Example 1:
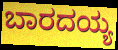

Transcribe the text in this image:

ಬಾರದಯ್ಯ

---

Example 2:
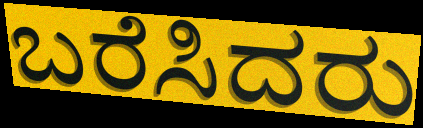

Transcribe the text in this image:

ಬರೆಸಿದರು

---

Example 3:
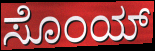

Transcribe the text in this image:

ಸೊಂಯ್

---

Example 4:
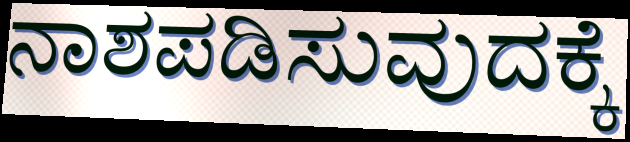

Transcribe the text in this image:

ನಾಶಪಡಿಸುವುದಕ್ಕೆ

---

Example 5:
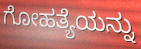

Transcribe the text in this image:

ಗೋಹತ್ಯೆಯನ್ನು